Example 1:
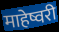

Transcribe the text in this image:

माहेष्वरी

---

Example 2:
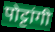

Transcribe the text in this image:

पोट्टांगी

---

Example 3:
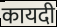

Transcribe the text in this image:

कायदी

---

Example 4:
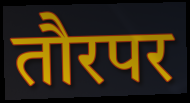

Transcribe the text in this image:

तौरपर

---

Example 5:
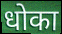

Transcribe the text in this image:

धोका